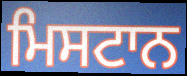
ਮਿਸਟਾਨ